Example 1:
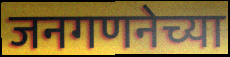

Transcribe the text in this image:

जनगणनेच्या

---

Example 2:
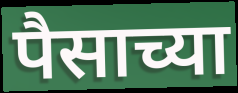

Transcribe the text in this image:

पैसाच्या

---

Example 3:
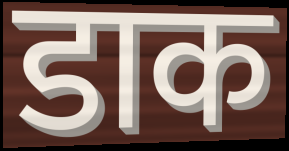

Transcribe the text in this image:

डाक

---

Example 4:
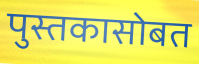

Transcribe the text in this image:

पुस्तकासोबत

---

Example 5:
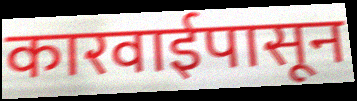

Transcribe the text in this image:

कारवाईपासून